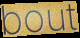
bout